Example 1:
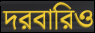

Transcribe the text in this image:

দরবারিও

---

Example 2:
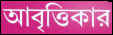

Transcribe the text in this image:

আবৃত্তিকার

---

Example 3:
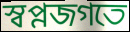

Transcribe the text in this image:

স্বপ্নজগতে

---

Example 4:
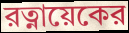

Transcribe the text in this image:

রত্নায়েকের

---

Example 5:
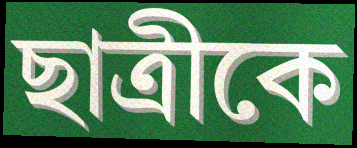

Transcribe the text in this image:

ছাত্রীকে